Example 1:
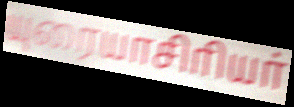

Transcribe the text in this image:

யுரையாசிரியர்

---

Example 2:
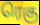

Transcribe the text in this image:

ரெகு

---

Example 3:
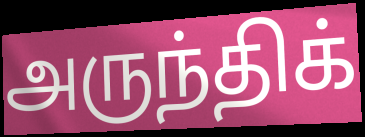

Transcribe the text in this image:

அருந்திக்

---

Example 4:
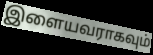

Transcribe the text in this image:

இளையவராகவும்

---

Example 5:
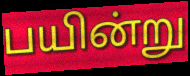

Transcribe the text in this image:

பயின்று